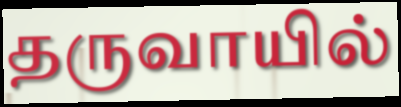
தருவாயில்